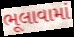
ભૂલાવામાં